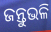
ଜନ୍ତୁଭଳି